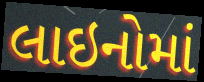
લાઇનોમાં